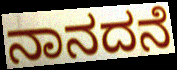
ನಾನದನೆ